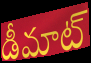
డీమాట్